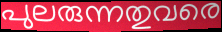
പുലരുന്നതുവരെ